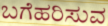
ಬಗೆಹರಿಸುವ